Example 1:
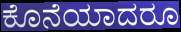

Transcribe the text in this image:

ಕೊನೆಯಾದರೂ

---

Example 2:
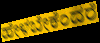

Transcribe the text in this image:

ಹೇಳಬೇಕೆಂದರೆ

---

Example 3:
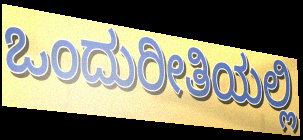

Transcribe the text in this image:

ಒಂದುರೀತಿಯಲ್ಲಿ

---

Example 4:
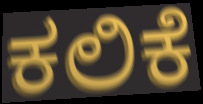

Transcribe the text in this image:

ಕಲಿಕೆ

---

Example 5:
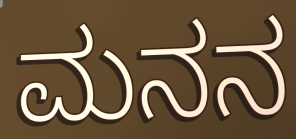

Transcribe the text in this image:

ಮನನ